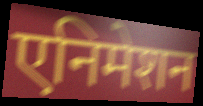
एनिमेशन